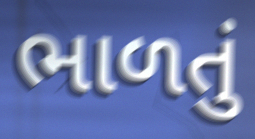
ભાળતું